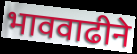
भाववाढीने